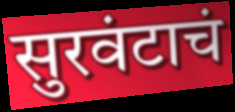
सुरवंटाचं